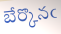
బేర్కొనఁ